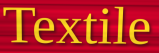
Textile